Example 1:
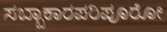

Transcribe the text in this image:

ಸಬ್ಬಾಕಾರಪರಿಪೂರೋ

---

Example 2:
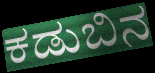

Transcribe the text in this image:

ಕಡುಬಿನ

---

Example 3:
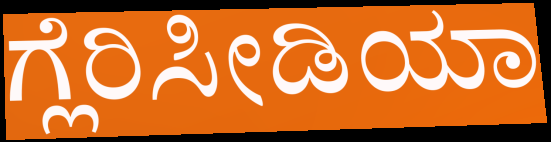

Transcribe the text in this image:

ಗ್ಲೆರಿಸೀಡಿಯಾ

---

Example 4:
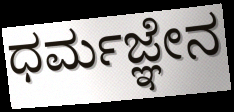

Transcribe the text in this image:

ಧರ್ಮಜ್ಞೇನ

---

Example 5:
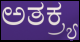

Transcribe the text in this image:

ಅತಕ್ರ್ಯ